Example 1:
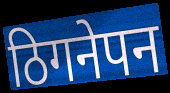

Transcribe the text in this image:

ठिगनेपन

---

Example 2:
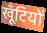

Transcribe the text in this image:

खूँटियों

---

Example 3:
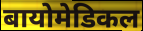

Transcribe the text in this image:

बायोमेडिकल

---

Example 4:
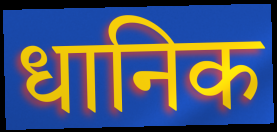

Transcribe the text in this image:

धानिक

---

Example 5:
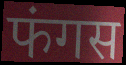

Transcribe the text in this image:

फंगस